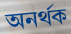
অনৰ্থক